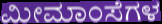
ಮೀಮಾಂಸೆಗಳ